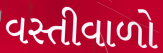
વસ્તીવાળો